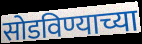
सोडविण्याच्या